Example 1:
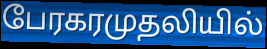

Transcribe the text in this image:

பேரகரமுதலியில்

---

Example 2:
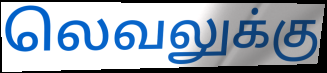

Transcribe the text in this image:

லெவலுக்கு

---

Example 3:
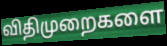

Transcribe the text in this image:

விதிமுறைகளை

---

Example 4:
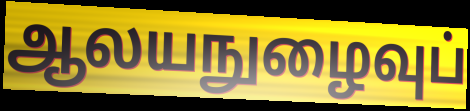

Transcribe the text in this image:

ஆலயநுழைவுப்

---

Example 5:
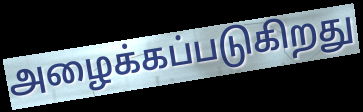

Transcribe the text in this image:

அழைக்கப்படுகிறது